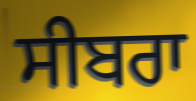
ਸੀਬਰਾ